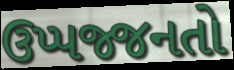
ઉપ્પજ્જનતો